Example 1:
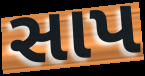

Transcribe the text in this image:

સાપ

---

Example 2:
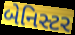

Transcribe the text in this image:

બેનિસ્ટર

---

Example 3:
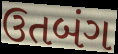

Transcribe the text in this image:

ઉતબંગ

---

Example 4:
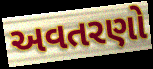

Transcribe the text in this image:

અવતરણો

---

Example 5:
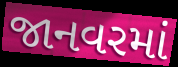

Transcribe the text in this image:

જાનવરમાં